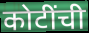
कोटींची